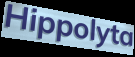
Hippolyta